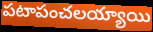
పటాపంచలయ్యాయి